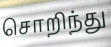
சொறிந்து